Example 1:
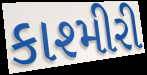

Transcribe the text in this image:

કાશ્મીરી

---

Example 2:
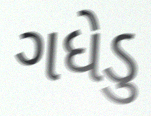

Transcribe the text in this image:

ગધેડુ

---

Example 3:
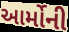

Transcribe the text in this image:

આર્મોની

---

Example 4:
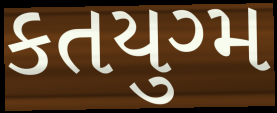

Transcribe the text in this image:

કતયુગ્મ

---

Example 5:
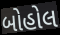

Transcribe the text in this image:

બોહોલ